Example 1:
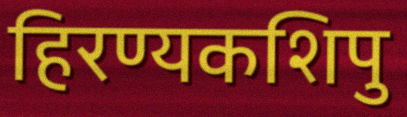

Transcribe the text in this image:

हिरण्यकशिपु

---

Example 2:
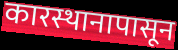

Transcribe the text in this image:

कारस्थानापासून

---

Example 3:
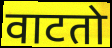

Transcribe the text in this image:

वाटतो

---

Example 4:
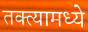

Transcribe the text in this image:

तक्त्यामध्ये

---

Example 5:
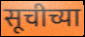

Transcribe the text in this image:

सूचीच्या